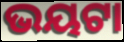
ଭୟଟା